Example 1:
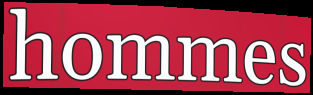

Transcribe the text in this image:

hommes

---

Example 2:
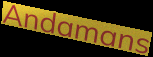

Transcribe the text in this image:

Andamans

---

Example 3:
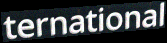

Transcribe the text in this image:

ternational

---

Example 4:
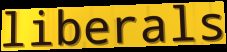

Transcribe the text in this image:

liberals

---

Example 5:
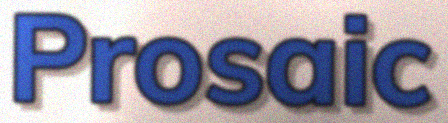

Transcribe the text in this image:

Prosaic